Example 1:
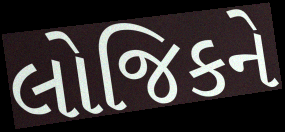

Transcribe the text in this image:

લોજિકને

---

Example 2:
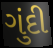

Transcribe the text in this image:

ગુંદી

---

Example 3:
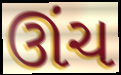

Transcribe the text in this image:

ઊંચ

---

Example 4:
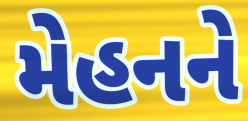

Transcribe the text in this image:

મેહનને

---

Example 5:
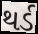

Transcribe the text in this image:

થર્ડ